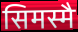
सिमस्मै